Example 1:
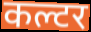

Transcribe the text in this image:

कल्टर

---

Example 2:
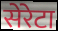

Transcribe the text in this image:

सेरेटा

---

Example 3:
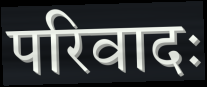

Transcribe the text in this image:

परिवादः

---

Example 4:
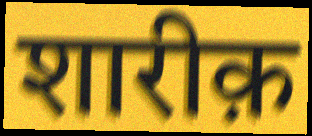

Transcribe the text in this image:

शारीक़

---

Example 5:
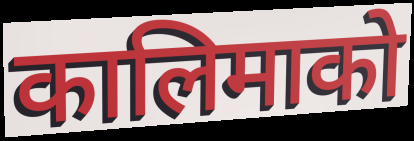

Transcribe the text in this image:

कालिमाको